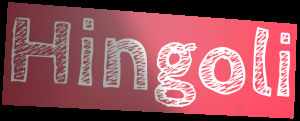
Hingoli